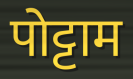
पोट्टाम